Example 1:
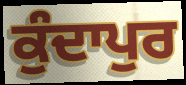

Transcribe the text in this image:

ਕੁੰਦਾਪੁਰ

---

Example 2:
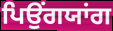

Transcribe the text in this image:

ਪਿਉਂਗਯਾਂਗ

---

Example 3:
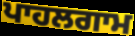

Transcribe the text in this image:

ਪਾਹਲਗਾਮ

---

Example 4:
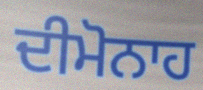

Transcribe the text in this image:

ਦੀਮੋਨਾਹ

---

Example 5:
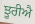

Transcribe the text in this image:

ਝੂਰੀਐ